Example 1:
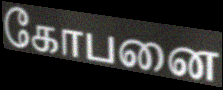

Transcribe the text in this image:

கோபனை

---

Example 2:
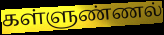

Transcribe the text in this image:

கள்ளுண்ணல்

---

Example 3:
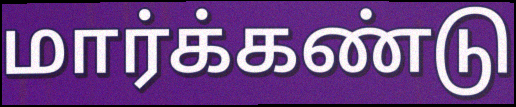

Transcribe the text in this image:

மார்க்கண்டு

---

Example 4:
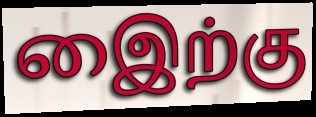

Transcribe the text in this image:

இைற்கு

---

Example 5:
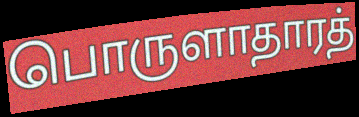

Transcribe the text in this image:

பொருளாதாரத்